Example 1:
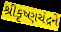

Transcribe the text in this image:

શ્રીકૃષ્ણચંદ્રને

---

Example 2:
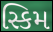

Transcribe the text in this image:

સ્કિમ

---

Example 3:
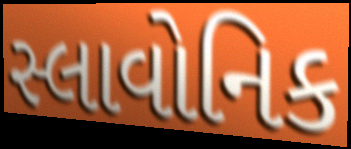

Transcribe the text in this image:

સ્લાવોનિક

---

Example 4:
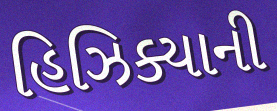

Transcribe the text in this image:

હિઝિક્યાની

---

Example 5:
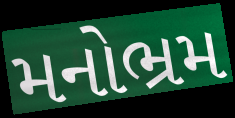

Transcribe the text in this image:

મનોભ્રમ